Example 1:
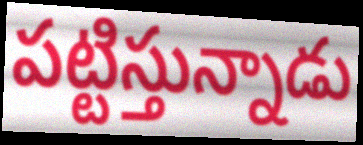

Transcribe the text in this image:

పట్టిస్తున్నాడు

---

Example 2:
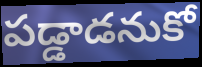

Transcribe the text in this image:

పడ్డాడనుకో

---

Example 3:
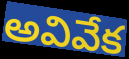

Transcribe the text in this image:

అవివేక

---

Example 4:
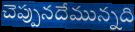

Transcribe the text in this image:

చెప్పునదేమున్నది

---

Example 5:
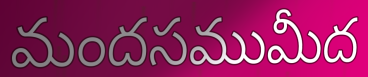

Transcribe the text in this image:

మందసముమీద